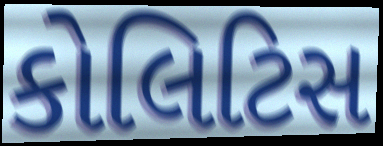
કોલિટિસ